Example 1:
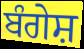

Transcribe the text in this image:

ਬੰਗੇਸ਼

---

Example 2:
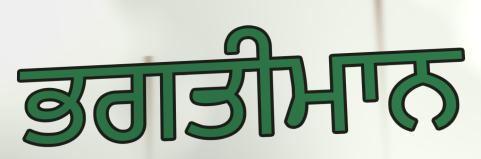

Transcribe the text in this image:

ਭਗਤੀਮਾਨ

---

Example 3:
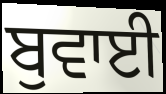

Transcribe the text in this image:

ਬੁਵਾਈ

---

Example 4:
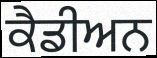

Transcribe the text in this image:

ਕੈਡੀਅਨ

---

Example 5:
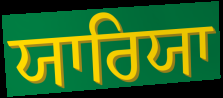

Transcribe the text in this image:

ਯਾਰਿਯਾ